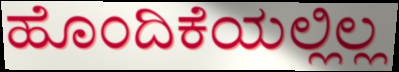
ಹೊಂದಿಕೆಯಲ್ಲಿಲ್ಲ